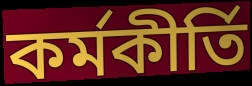
কর্মকীর্তি